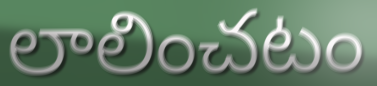
లాలించటం